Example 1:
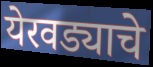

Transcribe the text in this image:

येरवड्याचे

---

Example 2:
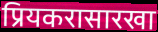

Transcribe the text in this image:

प्रियकरासारखा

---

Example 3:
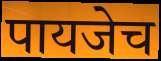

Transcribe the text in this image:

पायजेच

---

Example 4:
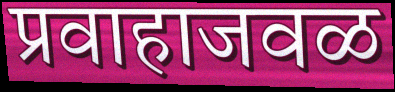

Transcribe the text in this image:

प्रवाहाजवळ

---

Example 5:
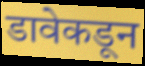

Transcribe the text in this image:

डावेकडून